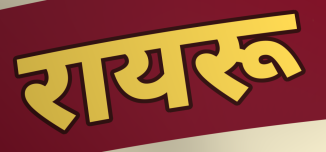
रायरू